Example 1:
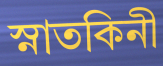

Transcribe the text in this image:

স্নাতকিনী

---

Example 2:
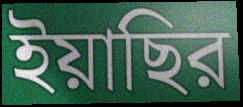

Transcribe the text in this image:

ইয়াছির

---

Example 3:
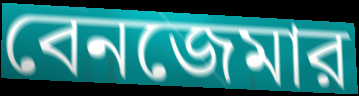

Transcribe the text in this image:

বেনজেমার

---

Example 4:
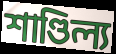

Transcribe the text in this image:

শাণ্ডিল্য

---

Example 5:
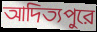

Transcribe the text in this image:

আদিত্যপুরে